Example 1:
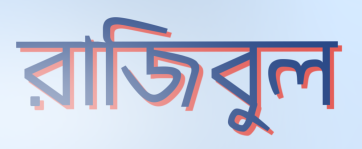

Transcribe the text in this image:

রাজিবুল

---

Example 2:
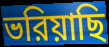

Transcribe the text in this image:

ভরিয়াছি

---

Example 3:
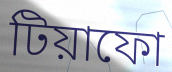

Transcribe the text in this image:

টিয়াফো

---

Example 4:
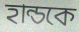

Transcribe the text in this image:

হান্ডকে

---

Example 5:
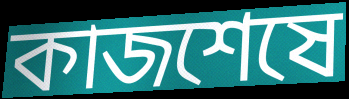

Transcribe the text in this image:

কাজশেষে